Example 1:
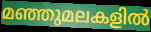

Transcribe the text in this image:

മഞ്ഞുമലകളിൽ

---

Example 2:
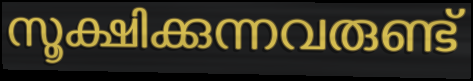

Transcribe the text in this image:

സൂക്ഷിക്കുന്നവരുണ്ട്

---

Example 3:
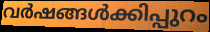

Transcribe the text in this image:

വർഷങ്ങൾക്കിപ്പുറം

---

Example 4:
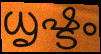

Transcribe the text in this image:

ധൃഷ്ടം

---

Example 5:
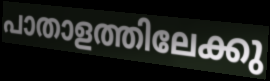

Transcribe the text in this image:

പാതാളത്തിലേക്കു